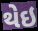
થેઇ